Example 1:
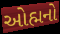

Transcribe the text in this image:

ઓહ્મનો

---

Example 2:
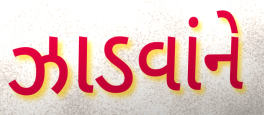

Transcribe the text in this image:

ઝાડવાંને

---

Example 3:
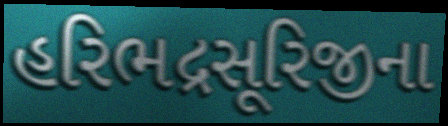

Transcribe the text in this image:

હરિભદ્રસૂરિજીના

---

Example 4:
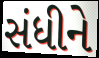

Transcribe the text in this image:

સંધીને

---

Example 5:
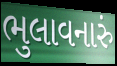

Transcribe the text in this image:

ભુલાવનારું